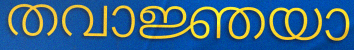
തവാജ്ഞയാ